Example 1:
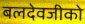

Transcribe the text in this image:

बलदेवजीको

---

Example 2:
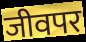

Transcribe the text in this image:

जीवपर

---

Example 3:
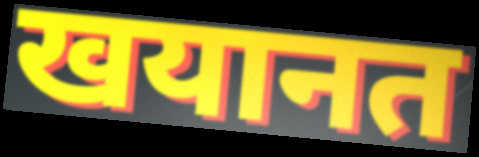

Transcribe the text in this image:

खयानत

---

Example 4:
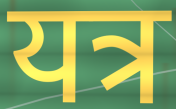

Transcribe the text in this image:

यत्र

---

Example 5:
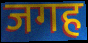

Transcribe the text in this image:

जगह